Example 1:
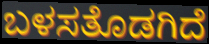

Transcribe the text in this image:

ಬಳಸತೊಡಗಿದೆ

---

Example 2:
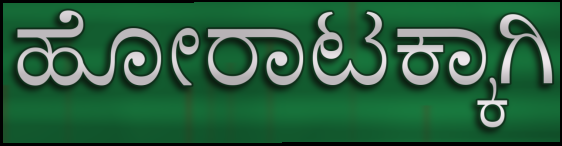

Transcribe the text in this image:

ಹೋರಾಟಕ್ಕಾಗಿ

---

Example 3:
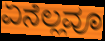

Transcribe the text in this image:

ಏನೆಲ್ಲವೂ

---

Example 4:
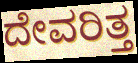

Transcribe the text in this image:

ದೇವರಿತ್ತ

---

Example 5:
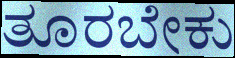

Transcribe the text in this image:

ತೂರಬೇಕು